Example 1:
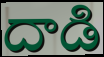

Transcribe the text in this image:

దాడి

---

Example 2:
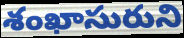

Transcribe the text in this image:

శంఖాసురుని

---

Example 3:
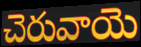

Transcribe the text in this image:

చెరువాయె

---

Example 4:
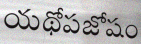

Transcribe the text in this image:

యథోపజోషం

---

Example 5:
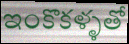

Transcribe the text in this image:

ఇంకొకళ్ళతో